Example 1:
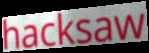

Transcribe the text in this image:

hacksaw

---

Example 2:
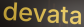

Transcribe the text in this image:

devata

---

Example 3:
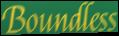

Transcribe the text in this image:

Boundless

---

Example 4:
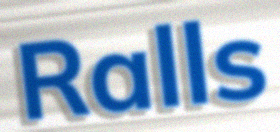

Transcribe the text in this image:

Ralls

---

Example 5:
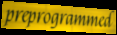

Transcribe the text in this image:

preprogrammed